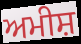
ਅਮੀਸ਼